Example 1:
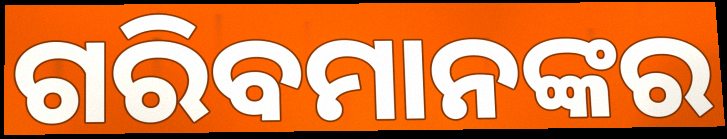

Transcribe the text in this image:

ଗରିବମାନଙ୍କର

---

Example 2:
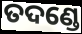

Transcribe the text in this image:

ତଦଣ୍ଡେ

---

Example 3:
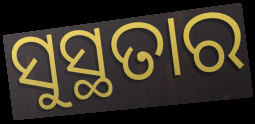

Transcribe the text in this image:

ସୁସ୍ଥତାର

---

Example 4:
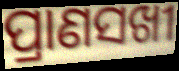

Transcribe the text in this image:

ପ୍ରାଣସଖୀ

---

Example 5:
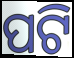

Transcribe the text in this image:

ପଟି